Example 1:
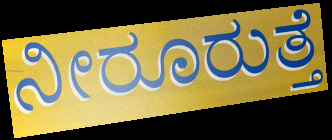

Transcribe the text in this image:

ನೀರೂರುತ್ತೆ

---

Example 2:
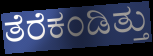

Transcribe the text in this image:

ತೆರೆಕಂಡಿತ್ತು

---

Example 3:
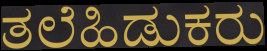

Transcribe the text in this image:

ತಲೆಹಿಡುಕರು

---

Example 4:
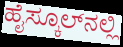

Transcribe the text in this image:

ಹೈಸ್ಕೂಲ್‌ನಲ್ಲಿ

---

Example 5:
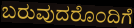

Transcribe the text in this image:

ಬರುವುದರೊಂದಿಗೆ